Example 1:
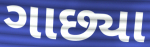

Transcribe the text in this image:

ગાછ્યા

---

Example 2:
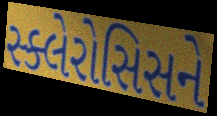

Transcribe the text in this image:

સ્ક્લેરોસિસને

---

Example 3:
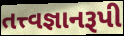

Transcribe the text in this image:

તત્ત્વજ્ઞાનરૂપી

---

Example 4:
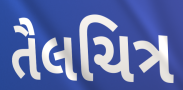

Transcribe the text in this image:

તૈલચિત્ર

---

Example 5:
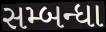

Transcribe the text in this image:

સમ્બન્ધા